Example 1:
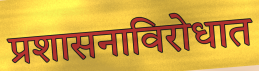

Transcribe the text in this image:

प्रशासनाविरोधात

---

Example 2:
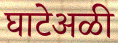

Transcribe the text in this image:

घाटेअळी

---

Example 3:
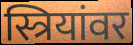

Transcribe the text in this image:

स्त्रियांवर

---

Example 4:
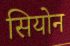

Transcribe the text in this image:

सियोन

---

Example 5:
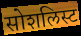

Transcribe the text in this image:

सोशलिस्ट